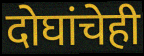
दोघांचेही